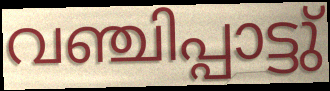
വഞ്ചിപ്പാട്ടു്